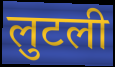
लुटली